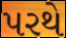
પરથે